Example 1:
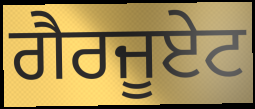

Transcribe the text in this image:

ਗੈਰਜੂਏਟ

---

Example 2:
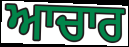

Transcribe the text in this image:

ਆਚਾਰ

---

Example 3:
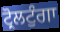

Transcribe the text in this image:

ਟ੍ਰੋਲਟੁੰਗਾ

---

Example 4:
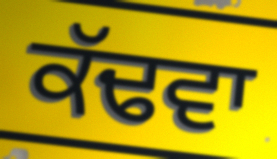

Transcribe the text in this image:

ਕੱਢਵਾ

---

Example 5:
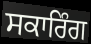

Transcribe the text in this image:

ਸਕਾਰਿੰਗ